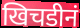
खिचडीनं